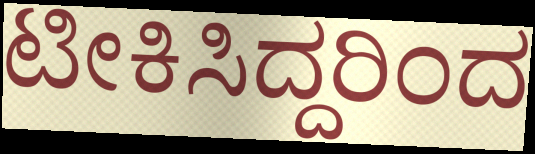
ಟೀಕಿಸಿದ್ದರಿಂದ